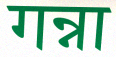
गन्ना